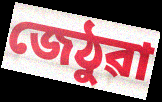
জেঠুৱা